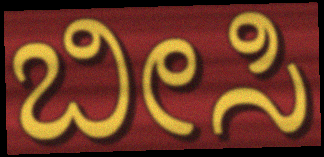
ಬೀಸಿ